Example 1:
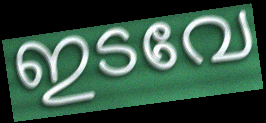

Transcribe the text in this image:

ഇടവേ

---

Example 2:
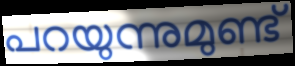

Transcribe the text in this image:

പറയുന്നുമുണ്ട്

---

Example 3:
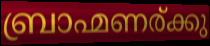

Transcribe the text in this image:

ബ്രാഹ്മണര്ക്കു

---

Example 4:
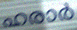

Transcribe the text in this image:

ഹരാർ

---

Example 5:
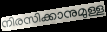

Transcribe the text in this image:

നിരസിക്കാനുമുള്ള